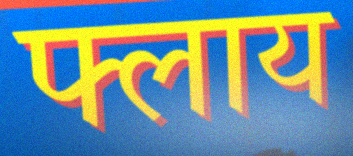
फ्लाय